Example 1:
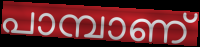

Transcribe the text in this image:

പാമ്പാണ്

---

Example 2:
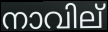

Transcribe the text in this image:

നാവില്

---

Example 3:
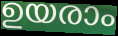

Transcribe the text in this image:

ഉയരാം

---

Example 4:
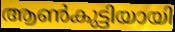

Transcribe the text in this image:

ആൺകുട്ടിയായി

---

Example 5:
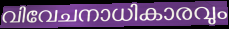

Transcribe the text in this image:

വിവേചനാധികാരവും